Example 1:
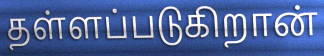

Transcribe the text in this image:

தள்ளப்படுகிறான்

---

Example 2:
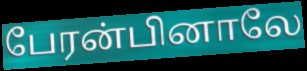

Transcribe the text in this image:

பேரன்பினாலே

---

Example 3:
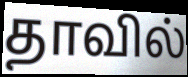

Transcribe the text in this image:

தாவில்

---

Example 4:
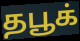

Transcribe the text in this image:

தபூக்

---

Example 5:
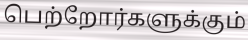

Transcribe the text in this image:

பெற்றோர்களுக்கும்